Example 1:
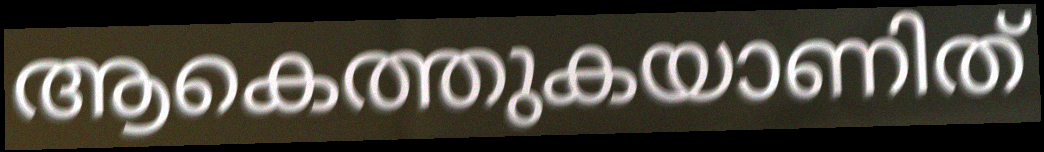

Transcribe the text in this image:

ആകെത്തുകയാണിത്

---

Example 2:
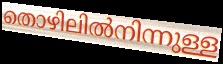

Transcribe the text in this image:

തൊഴിലിൽനിന്നുള്ള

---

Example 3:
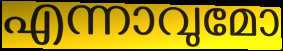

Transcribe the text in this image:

എന്നാവുമോ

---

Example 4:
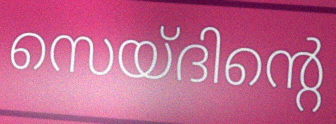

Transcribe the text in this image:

സെയ്ദിന്റെ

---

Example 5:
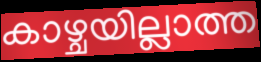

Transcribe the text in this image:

കാഴ്ചയില്ലാത്ത